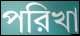
পরিখা